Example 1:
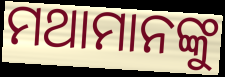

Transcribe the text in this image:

ମଥାମାନଙ୍କୁ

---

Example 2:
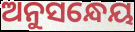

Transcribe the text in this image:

ଅନୁସନ୍ଧେୟ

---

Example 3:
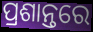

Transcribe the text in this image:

ପ୍ରଶାନ୍ତରେ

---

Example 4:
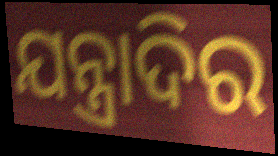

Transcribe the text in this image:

ଯନ୍ତ୍ରାଦିର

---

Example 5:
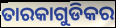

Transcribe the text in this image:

ତାରକାଗୁଡିକର